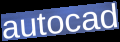
autocad